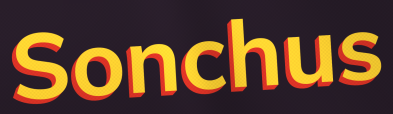
Sonchus